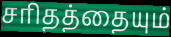
சரிதத்தையும்